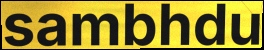
sambhdu